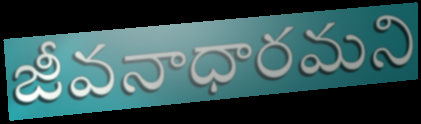
జీవనాధారమని